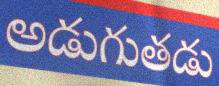
అడుగుతడు